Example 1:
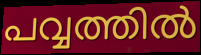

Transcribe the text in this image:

പവ്വത്തിൽ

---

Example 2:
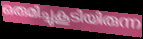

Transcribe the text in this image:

ഒരുമിച്ചുകൂടിയിരുന്ന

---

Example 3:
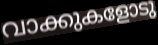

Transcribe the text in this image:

വാക്കുകളോടു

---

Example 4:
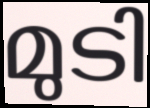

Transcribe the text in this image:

മുടി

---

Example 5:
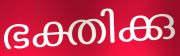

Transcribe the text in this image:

ഭക്തിക്കു